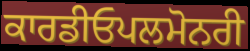
ਕਾਰਡੀਓਪਲਮੋਨਰੀ